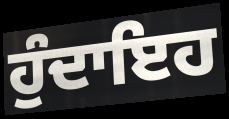
ਹੁੰਦਾਇਹ